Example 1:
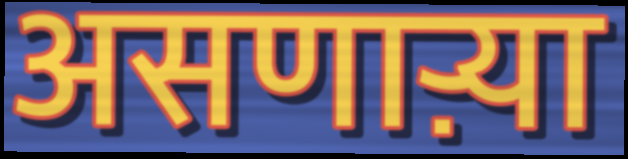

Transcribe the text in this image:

असणाऱ्‍या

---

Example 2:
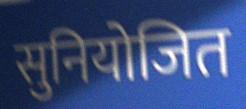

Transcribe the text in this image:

सुनियोजित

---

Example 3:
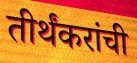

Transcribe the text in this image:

तीर्थंकरांची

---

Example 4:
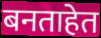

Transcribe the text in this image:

बनताहेत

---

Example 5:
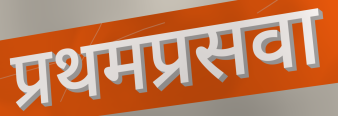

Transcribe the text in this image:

प्रथमप्रसवा